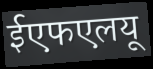
ईएफएलयू